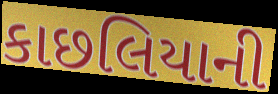
કાછલિયાની